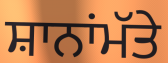
ਸ਼ਾਨਾਂਮੱਤੇ